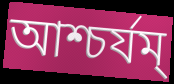
আশ্চর্যম্